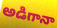
అడిగానా